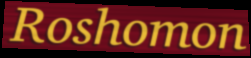
Roshomon